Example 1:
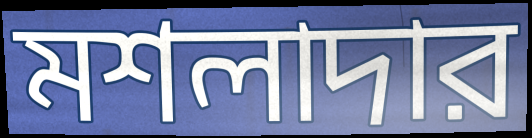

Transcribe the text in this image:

মশলাদার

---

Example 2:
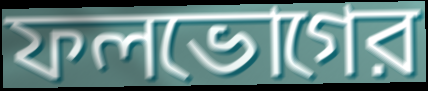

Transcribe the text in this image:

ফলভোগের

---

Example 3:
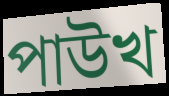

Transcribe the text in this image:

পাউখ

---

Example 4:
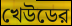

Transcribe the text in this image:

খেউডের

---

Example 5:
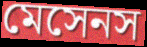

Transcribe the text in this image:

মেসেনস